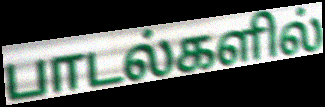
பாடல்களில்